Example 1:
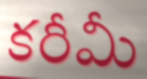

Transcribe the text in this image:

కరీమీ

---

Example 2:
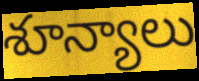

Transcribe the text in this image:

శూన్యాలు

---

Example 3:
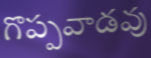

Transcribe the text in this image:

గొప్పవాడవు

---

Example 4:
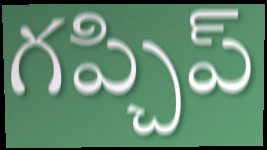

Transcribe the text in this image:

గప్చిప్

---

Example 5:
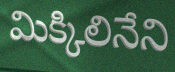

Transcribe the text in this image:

మిక్కిలినేని